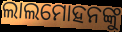
ଲାଲମୋହନଙ୍କୁ